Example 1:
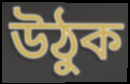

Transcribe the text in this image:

উঠুক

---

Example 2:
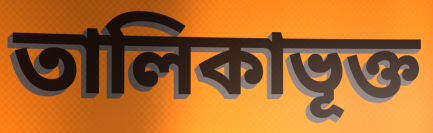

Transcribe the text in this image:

তালিকাভূক্ত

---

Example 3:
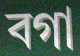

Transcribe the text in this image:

বগা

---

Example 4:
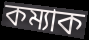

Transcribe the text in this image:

কম্যাক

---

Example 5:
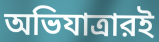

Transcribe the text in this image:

অভিযাত্রারই